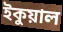
ইকুয়াল